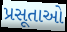
પ્રસૂતાઓ